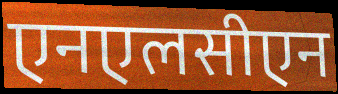
एनएलसीएन